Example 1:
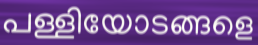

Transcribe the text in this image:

പള്ളിയോടങ്ങളെ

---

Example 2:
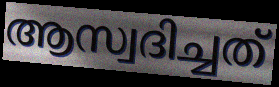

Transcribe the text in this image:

ആസ്വദിച്ചത്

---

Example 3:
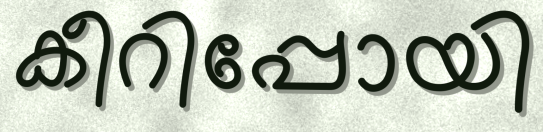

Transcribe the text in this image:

കീറിപ്പോയി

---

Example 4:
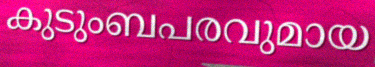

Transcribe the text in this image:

കുടുംബപരവുമായ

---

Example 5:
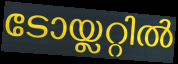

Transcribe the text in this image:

ടോയ്ലറ്റിൽ